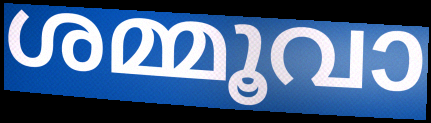
ശമ്മൂവാ